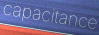
capacitance